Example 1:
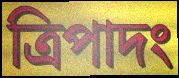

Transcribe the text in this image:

ত্রিপাদং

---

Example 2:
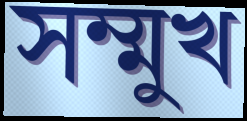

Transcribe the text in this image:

সম্মুখ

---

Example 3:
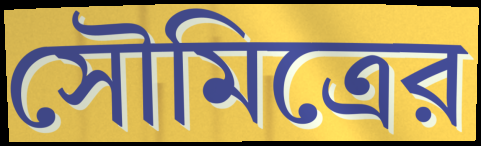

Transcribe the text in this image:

সৌমিত্রের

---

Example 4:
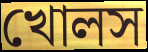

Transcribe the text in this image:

খোলস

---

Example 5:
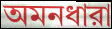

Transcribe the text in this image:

অমনধারা